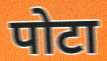
पोटा